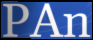
PAn